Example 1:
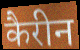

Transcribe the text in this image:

कैरीन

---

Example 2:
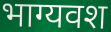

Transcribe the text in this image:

भाग्यवश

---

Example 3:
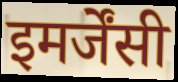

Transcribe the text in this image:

इमर्जेंसी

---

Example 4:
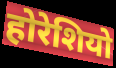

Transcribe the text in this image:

होरेशियो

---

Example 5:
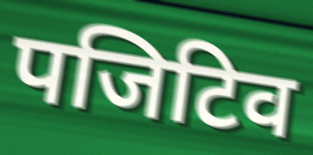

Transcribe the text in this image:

पजिटिव